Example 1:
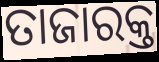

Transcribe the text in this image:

ତାଜାରକ୍ତ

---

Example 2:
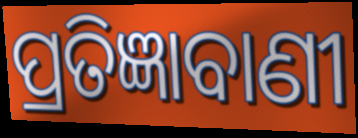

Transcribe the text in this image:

ପ୍ରତିଜ୍ଞାବାଣୀ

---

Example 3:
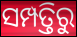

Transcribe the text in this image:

ସମ୍ପତ୍ତିରୁ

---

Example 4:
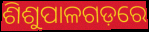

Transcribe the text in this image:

ଶିଶୁପାଳଗଡ଼ରେ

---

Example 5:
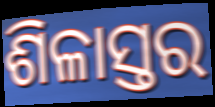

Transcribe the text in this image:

ଶିଳାସ୍ତର